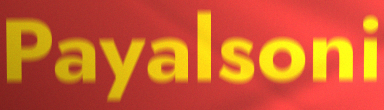
Payalsoni